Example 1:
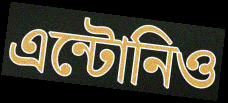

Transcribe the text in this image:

এন্টোনিও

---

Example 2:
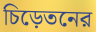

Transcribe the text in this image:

চিড়েতনের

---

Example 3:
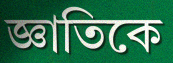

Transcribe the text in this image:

জ্ঞাতিকে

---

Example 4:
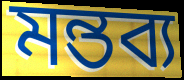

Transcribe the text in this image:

মন্তব্য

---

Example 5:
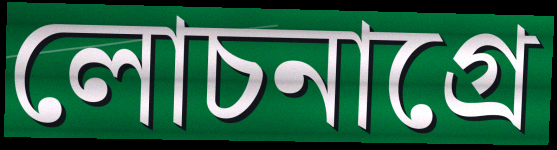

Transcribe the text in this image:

লোচনাগ্রে